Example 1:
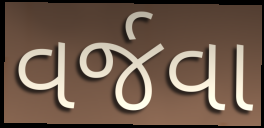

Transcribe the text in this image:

વર્જવા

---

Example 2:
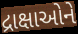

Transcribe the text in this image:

દ્રાક્ષાઓને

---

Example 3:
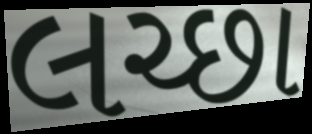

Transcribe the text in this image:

લચ્છા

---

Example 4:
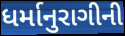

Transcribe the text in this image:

ધર્માનુરાગીની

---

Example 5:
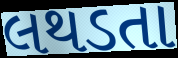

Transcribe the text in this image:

લથડતા